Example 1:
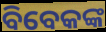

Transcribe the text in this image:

ବିବେକଙ୍କ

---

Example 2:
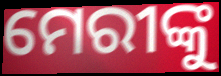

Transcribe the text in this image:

ମେରୀଙ୍କୁ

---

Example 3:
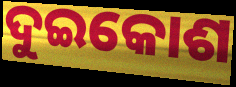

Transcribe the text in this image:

ଦୁଇକୋଶ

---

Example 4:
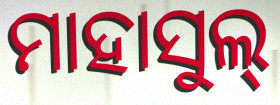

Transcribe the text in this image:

ମାହାସୁଲ୍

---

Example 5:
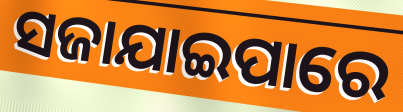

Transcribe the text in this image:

ସଜାଯାଇପାରେ